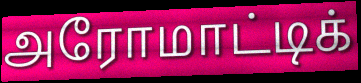
அரோமாட்டிக்